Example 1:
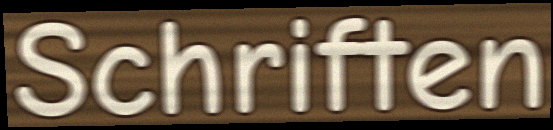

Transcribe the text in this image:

Schriften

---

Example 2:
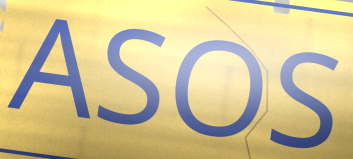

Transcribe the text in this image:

ASOS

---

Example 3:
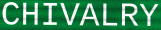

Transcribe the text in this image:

CHIVALRY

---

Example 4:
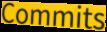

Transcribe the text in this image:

Commits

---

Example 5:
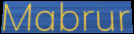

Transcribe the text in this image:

Mabrur